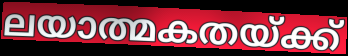
ലയാത്മകതയ്ക്ക്